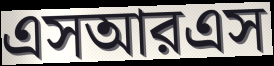
এসআরএস